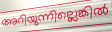
അറിയുന്നില്ലെങ്കിൽ